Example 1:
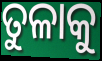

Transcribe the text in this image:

ତୁଳାକୁ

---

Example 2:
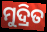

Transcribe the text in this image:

ମୁଦ୍ରିତ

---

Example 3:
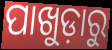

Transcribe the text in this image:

ପାଖୁଡ଼ାରୁ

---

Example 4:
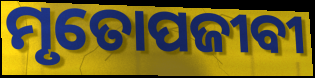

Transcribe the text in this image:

ମୃତୋପଜୀବୀ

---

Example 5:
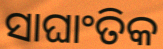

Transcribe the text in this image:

ସାଘାଂତିକ